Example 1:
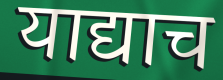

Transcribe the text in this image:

याद्याच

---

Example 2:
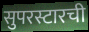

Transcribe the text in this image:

सुपरस्टारची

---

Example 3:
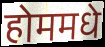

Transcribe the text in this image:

होममधे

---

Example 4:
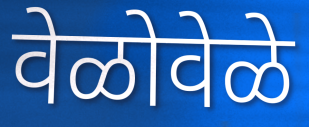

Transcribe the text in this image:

वेळोवेळे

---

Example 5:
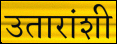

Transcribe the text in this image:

उतारांशी